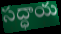
సద్ధాయ